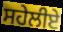
ਸਹੇਲੀਏ